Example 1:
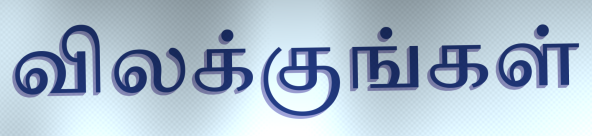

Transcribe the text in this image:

விலக்குங்கள்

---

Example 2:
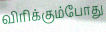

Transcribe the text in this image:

விரிக்கும்போது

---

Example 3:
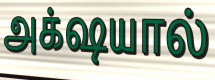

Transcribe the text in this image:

அக்‌ஷயால்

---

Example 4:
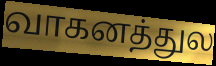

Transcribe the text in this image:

வாகனத்துல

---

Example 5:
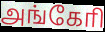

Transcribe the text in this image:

அங்கேரி